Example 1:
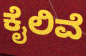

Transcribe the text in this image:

ಕೈಲಿವೆ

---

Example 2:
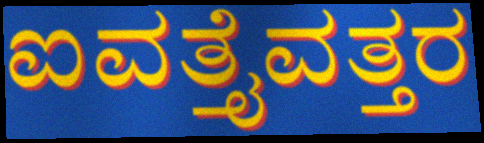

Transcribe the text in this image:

ಐವತ್ತೈವತ್ತರ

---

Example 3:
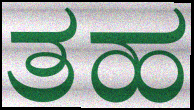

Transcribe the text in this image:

ತಹ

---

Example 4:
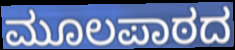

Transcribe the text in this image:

ಮೂಲಪಾಠದ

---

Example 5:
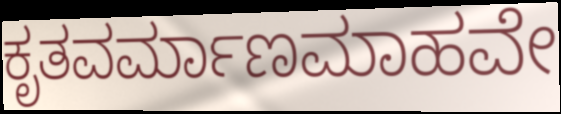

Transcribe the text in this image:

ಕೃತವರ್ಮಾಣಮಾಹವೇ